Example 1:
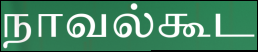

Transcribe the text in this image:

நாவல்கூட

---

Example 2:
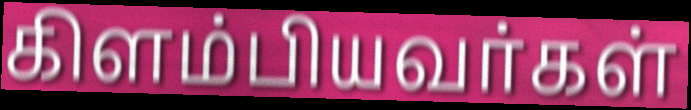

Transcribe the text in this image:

கிளம்பியவர்கள்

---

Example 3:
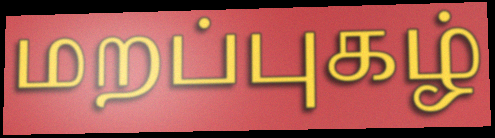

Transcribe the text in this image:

மறப்புகழ்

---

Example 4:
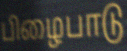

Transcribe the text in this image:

பிழைபாடு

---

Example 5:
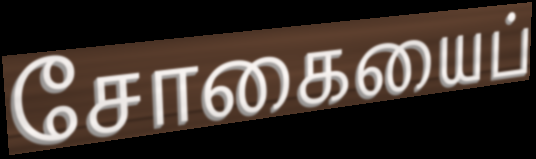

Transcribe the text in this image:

சோகையைப்